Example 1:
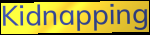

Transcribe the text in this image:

Kidnapping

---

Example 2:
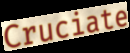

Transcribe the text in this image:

Cruciate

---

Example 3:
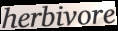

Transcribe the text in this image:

herbivore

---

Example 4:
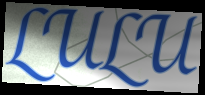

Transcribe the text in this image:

LULU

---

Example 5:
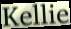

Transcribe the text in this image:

Kellie